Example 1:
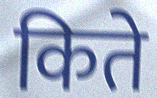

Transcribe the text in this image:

किते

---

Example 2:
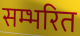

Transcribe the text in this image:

सम्भरित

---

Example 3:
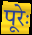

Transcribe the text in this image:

पूरेः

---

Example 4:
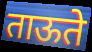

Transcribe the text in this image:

ताऊते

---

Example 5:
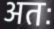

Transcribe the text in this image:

अतः